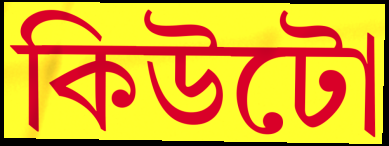
কিউটো